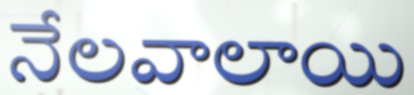
నేలవాలాయి